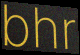
bhr